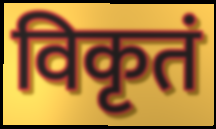
विकृतं